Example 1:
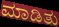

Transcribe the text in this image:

ಮಾಡಿತು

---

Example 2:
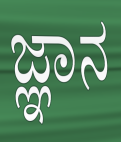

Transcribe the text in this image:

ಜ್ಞಾನ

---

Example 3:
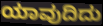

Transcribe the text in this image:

ಯಾವುದಿದು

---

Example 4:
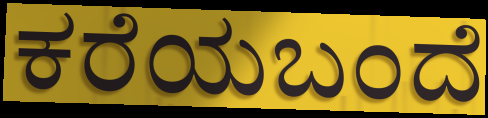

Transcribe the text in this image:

ಕರೆಯಬಂದೆ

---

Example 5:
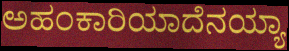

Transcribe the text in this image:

ಅಹಂಕಾರಿಯಾದೆನಯ್ಯಾ